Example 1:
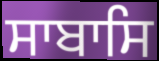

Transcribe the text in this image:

ਸਾਬਾਸਿ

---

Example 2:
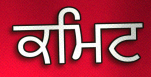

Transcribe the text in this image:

ਕਮਿਟ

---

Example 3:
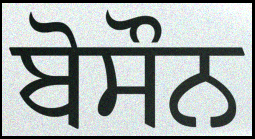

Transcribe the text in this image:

ਬੋਸੌਨ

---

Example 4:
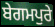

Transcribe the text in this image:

ਬੇਗਮਪੁਰੇ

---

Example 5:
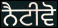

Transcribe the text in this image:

ਨੈਟੀਵੋ